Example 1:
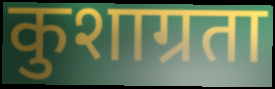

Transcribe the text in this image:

कुशाग्रता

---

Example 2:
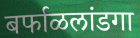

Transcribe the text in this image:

बर्फाळलांडगा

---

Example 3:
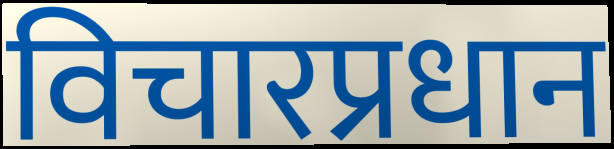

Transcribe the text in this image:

विचारप्रधान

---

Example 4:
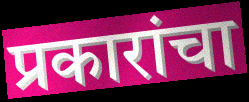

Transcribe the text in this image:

प्रकारांचा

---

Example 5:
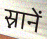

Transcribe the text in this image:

स्नानें